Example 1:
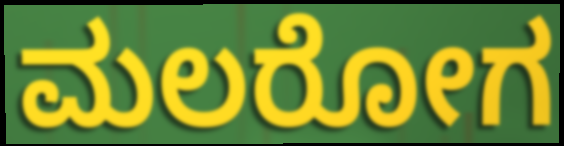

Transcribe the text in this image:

ಮಲರೋಗ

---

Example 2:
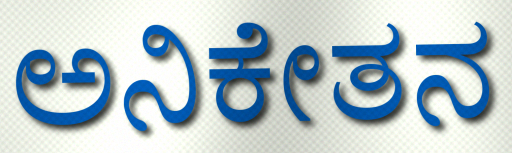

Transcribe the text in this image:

ಅನಿಕೇತನ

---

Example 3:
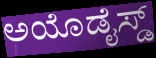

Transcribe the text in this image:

ಅಯೊಡೈಸ್ಡ್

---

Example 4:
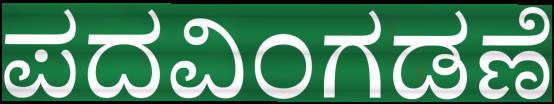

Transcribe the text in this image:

ಪದವಿಂಗಡಣೆ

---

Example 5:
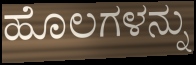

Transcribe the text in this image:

ಹೊಲಗಳನ್ನು